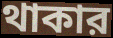
থাকার